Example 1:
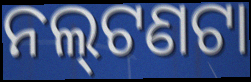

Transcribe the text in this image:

ନଲ୍‍ଟଣଟା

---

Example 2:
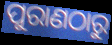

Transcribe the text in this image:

ପୁରାଣଠାରୁ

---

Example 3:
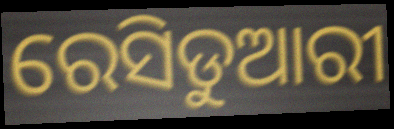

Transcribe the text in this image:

ରେସିଡୁଆରୀ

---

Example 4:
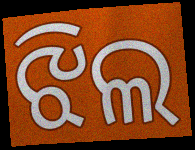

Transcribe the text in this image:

ଝିଲ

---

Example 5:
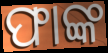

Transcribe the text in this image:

ଫାଙ୍କ